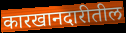
कारखानदारीतील